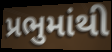
પ્રભુમાંથી